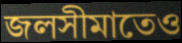
জলসীমাতেও